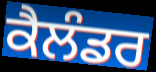
ਕੈਲੰਡਰ